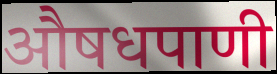
औषधपाणी